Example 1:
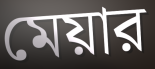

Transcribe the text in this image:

মেয়ার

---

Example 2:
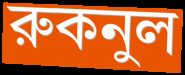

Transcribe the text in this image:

রুকনুল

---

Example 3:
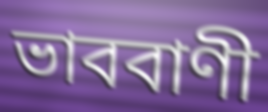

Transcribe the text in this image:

ভাববাণী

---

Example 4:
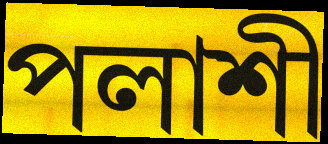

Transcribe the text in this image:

পলাশী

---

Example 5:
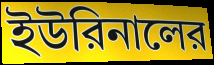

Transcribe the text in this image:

ইউরিনালের